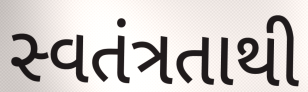
સ્વતંત્રતાથી